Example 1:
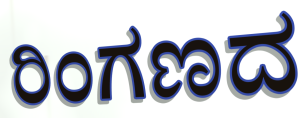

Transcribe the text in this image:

ರಿಂಗಣದ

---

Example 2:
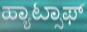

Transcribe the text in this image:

ಹ್ಯಾಟ್ಸಾಫ್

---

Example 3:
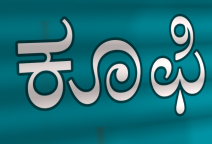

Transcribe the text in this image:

ಕೂಫಿ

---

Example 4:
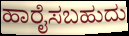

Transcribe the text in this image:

ಹಾರೈಸಬಹುದು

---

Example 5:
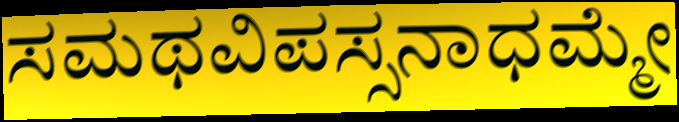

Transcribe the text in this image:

ಸಮಥವಿಪಸ್ಸನಾಧಮ್ಮೇ